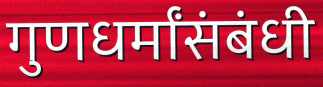
गुणधर्मांसंबंधी